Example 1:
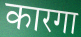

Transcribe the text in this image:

कारगा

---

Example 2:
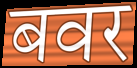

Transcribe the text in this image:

बवर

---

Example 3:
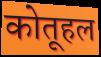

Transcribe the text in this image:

कोतूहल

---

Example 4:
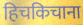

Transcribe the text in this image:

हिचकिचाना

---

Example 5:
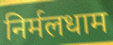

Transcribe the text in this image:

निर्मलधाम